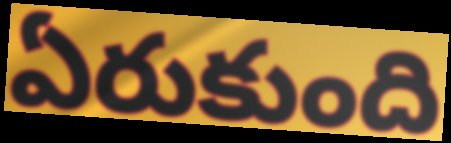
ఏరుకుంది